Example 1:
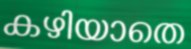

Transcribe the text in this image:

കഴിയാതെ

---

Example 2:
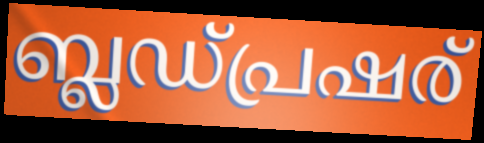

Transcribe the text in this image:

ബ്ലഡ്പ്രഷര്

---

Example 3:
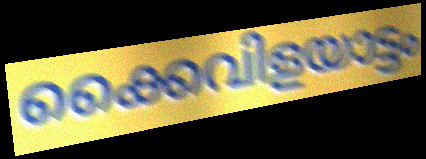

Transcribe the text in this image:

ക്കൈവിളയാട്ടം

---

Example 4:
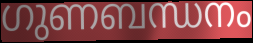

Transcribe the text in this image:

ഗുണബന്ധനം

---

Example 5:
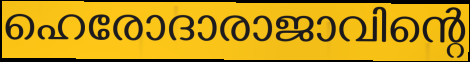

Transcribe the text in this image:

ഹെരോദാരാജാവിന്റെ